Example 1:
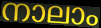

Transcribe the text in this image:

നാലാം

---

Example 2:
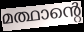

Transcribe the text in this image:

മത്ഥാന്റെ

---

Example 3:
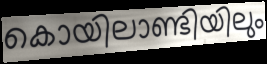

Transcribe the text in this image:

കൊയിലാണ്ടിയിലും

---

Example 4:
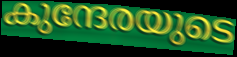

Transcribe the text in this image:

കുന്ദേരയുടെ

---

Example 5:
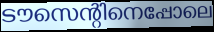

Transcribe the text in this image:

ടൗസെന്റിനെപ്പോലെ